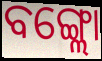
ବଙ୍ଗ୍ଲୋ